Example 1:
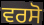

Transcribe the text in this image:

ਵਰਸੋ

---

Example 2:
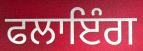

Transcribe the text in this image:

ਫਲਾਇੰਗ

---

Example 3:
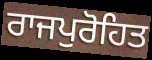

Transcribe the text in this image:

ਰਾਜਪੁਰੋਹਿਤ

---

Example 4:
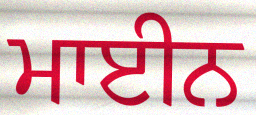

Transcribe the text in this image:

ਮਾਈਨ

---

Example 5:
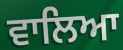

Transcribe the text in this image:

ਵਾਲਿਆ